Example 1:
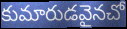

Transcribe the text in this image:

కుమారుడవైనచో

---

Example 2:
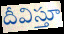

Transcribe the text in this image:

దీవిస్తూ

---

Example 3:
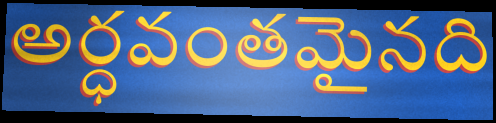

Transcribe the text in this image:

అర్ధవంతమైనది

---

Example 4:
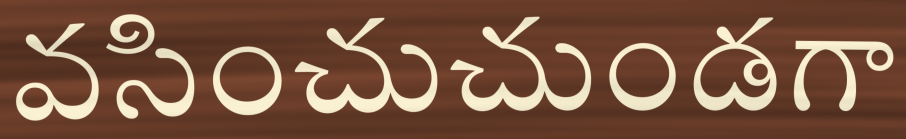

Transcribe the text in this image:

వసించుచుండగా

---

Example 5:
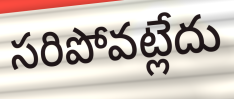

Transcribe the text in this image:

సరిపోవట్లేదు